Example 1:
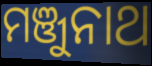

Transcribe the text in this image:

ମଞ୍ଜୁନାଥ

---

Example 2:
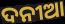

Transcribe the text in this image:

ଦନୀଆ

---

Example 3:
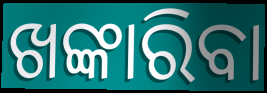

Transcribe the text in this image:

ଖଙ୍କାରିବା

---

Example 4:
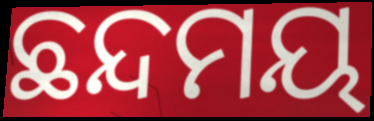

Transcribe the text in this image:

ଛନ୍ଦମୟ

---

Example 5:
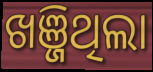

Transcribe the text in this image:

ଖଞ୍ଜିଥିଲା